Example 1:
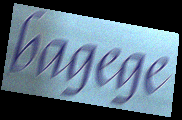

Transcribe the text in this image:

bagege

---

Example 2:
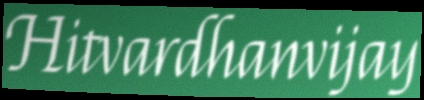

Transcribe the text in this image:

Hitvardhanvijay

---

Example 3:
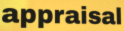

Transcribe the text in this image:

appraisal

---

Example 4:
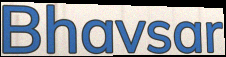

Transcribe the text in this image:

Bhavsar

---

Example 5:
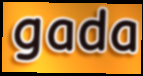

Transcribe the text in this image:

gada